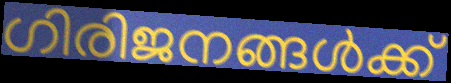
ഗിരിജനങ്ങൾക്ക്